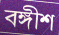
বঙ্গীশ